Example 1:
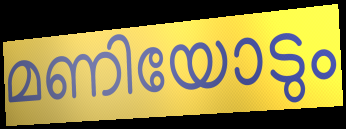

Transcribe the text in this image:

മണിയോടും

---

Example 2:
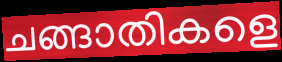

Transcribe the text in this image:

ചങ്ങാതികളെ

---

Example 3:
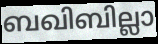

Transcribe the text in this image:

ബഖിബില്ലാ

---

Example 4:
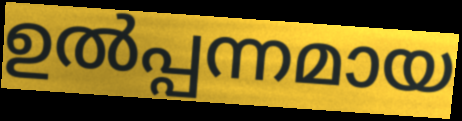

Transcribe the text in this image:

ഉൽപ്പന്നമായ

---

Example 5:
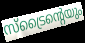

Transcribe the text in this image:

സ്ട്രൈന്റെയും